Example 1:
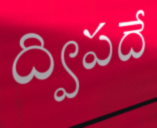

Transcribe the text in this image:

ద్విపదే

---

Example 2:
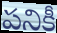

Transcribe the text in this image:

పనికీ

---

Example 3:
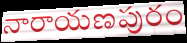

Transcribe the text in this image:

నారాయణపురం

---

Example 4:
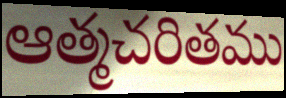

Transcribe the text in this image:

ఆత్మచరితము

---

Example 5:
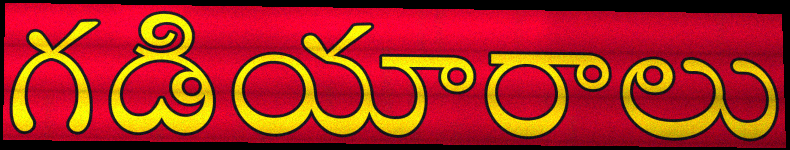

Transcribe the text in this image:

గడియారాలు